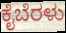
ಕೈಬೆರಳು